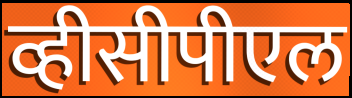
व्हीसीपीएल